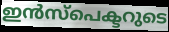
ഇൻസ്പെക്ടറുടെ